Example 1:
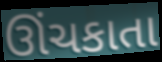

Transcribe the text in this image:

ઊંચકાતા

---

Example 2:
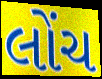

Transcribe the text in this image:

લોંચ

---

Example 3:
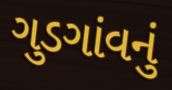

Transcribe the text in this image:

ગુડગાંવનું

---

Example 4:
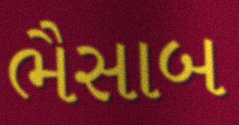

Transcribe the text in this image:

ભૈસાબ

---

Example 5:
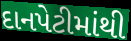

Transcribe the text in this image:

દાનપેટીમાંથી